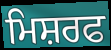
ਮਿਸ਼ਰਫ